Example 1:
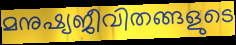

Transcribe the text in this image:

മനുഷ്യജീവിതങ്ങളുടെ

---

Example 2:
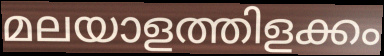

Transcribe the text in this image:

മലയാളത്തിളക്കം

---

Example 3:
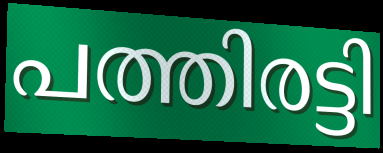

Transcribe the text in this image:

പത്തിരട്ടി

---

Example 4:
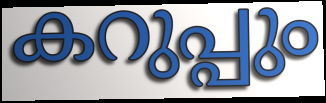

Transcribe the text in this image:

കറുപ്പും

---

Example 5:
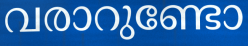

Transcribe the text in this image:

വരാറുണ്ടോ